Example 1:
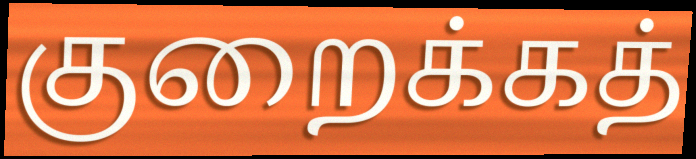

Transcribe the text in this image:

குறைக்கத்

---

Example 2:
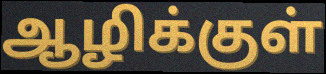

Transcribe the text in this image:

ஆழிக்குள்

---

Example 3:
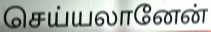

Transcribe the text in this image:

செய்யலானேன்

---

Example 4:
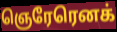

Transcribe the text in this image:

ஞெரேரெனக்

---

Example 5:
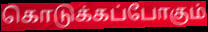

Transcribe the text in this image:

கொடுக்கப்போகும்